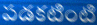
పడకటింటి